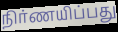
நிர்ணயிப்பது